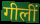
गीलीं